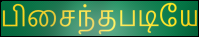
பிசைந்தபடியே